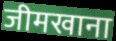
जीमखाना